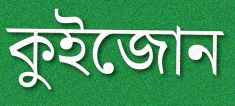
কুইজোন